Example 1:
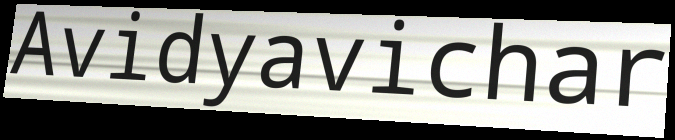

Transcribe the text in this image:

Avidyavichar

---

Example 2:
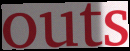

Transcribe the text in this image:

outs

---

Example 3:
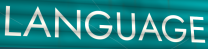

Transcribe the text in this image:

LANGUAGE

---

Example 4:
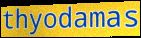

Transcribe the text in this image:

thyodamas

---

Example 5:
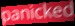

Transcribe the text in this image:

panicked